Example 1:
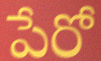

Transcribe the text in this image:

పేరో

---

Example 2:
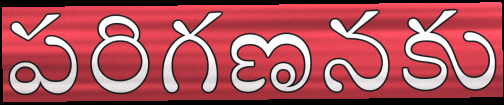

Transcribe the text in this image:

పరిగణనకు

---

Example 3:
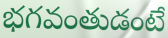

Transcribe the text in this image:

భగవంతుడంటే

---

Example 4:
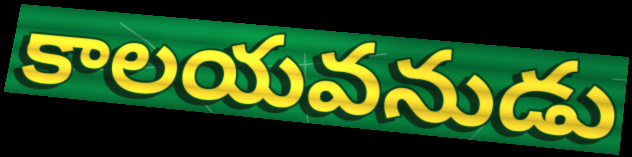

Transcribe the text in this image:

కాలయవనుడు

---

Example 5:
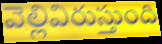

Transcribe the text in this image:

వెల్లివిరుస్తుంది